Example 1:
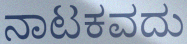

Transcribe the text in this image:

ನಾಟಕವದು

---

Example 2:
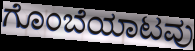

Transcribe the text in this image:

ಗೊಂಬೆಯಾಟವು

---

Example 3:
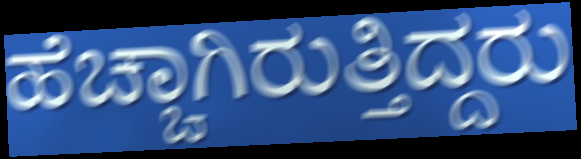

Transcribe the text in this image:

ಹೆಚ್ಚಾಗಿರುತ್ತಿದ್ದರು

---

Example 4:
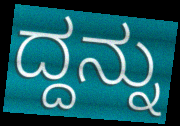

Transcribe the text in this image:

ದ್ದನ್ನು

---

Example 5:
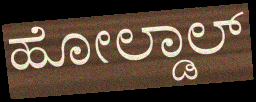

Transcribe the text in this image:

ಹೋಲ್ಡಾಲ್